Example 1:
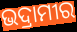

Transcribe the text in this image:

ଭଦ୍ରାମୀର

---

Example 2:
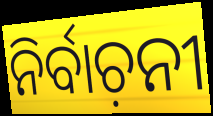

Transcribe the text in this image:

ନିର୍ବାଚ଼ନୀ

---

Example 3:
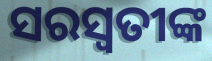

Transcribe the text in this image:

ସରସ୍ବତୀଙ୍କ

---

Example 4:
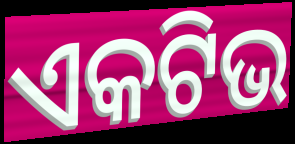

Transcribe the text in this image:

ଏକଟିଭ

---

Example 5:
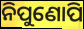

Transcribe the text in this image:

ନିପୁଣୋପି